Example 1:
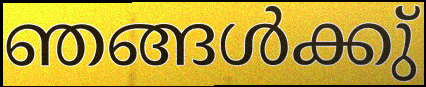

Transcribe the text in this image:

ഞങ്ങൾക്കു്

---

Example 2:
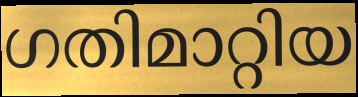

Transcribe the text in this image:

ഗതിമാറ്റിയ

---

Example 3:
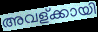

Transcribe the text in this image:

അവള്ക്കായി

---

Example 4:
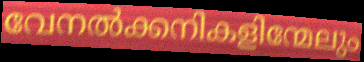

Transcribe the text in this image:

വേനൽക്കനികളിന്മേലും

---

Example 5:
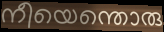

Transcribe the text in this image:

നീയെന്തൊരു